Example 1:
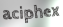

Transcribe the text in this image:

aciphex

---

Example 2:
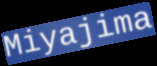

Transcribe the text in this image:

Miyajima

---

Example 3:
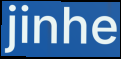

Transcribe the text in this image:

jinhe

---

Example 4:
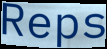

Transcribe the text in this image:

Reps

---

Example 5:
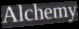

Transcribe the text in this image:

Alchemy